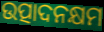
ଉତ୍ପାଦନକ୍ଷମ